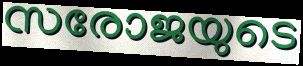
സരോജയുടെ